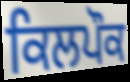
ਕਿਲਪੌਕ